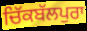
ਚਿੱਕਬੱਲਪੁਰਾ